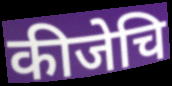
कीजेचि